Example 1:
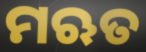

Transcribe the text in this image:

ମଋତ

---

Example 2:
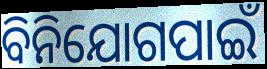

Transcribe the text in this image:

ବିନିଯୋଗପାଇଁ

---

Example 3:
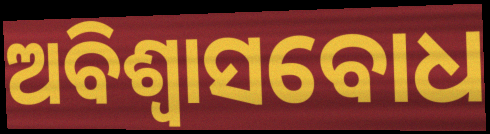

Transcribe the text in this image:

ଅବିଶ୍ୱାସବୋଧ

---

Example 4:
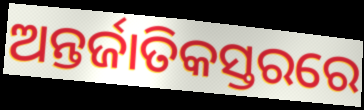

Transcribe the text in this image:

ଅନ୍ତର୍ଜାତିକସ୍ତରରେ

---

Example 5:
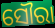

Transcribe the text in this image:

ସୌରା